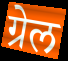
ग्रेल